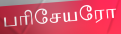
பரிசேயரோ